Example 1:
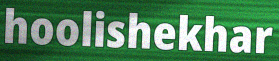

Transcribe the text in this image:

hoolishekhar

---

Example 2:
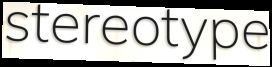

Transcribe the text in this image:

stereotype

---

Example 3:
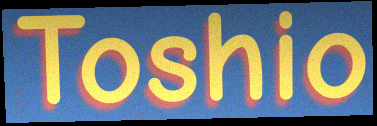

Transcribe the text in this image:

Toshio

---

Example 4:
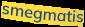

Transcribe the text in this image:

smegmatis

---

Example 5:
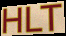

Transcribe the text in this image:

HLT